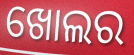
ଖୋଲର